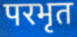
परभृत